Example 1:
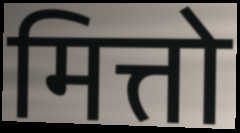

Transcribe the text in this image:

मित्तो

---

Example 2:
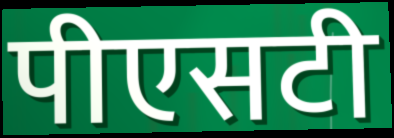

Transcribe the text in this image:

पीएसटी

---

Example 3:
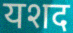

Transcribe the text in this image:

यशद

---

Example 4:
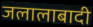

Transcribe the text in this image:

जलालाबादी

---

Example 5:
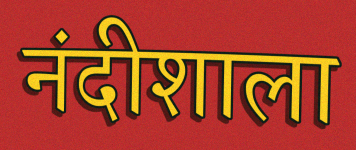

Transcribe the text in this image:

नंदीशाला